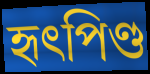
হৃৎপিণ্ড